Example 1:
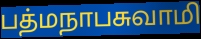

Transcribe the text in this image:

பத்மநாபசுவாமி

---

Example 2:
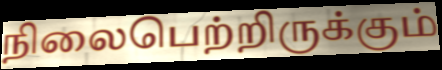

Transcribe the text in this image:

நிலைபெற்றிருக்கும்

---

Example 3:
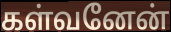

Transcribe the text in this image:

கள்வனேன்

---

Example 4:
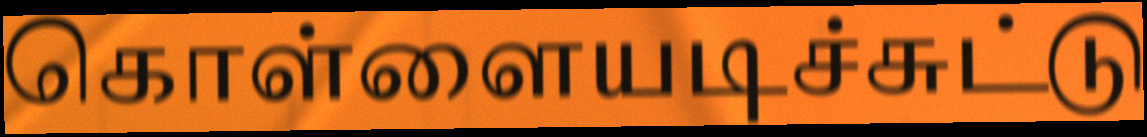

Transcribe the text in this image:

கொள்ளையடிச்சுட்டு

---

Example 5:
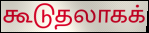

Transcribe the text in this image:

கூடுதலாகக்